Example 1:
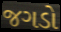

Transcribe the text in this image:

જગડો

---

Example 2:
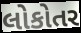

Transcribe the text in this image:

લોકોતર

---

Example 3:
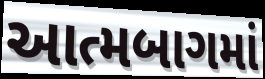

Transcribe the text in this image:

આત્મબાગમાં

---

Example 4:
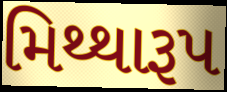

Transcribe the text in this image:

મિથ્થારૂપ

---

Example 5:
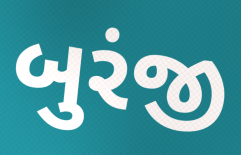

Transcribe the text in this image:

બુરંજી